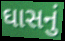
ઘાસનું